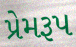
પ્રેમરૂપ